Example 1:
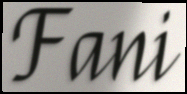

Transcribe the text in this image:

Fani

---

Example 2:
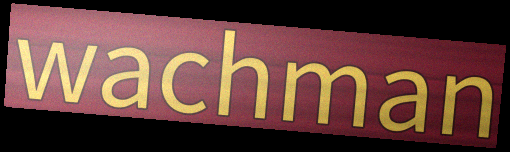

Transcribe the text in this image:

wachman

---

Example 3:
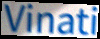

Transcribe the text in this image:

Vinati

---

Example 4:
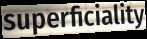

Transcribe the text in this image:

superficiality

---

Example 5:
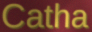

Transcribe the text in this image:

Catha